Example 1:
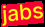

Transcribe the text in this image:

jabs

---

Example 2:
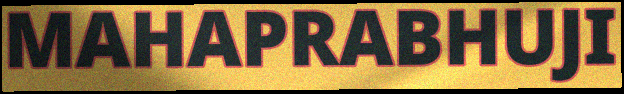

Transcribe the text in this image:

MAHAPRABHUJI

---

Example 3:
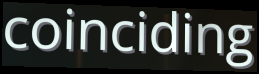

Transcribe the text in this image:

coinciding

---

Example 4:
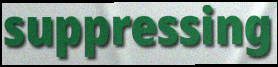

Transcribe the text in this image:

suppressing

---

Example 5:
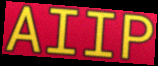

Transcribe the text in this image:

AIIP